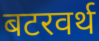
बटरवर्थ